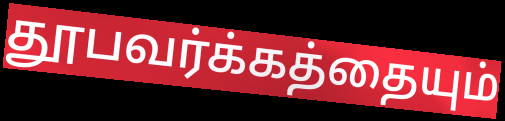
தூபவர்க்கத்தையும்